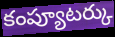
కంప్యూటర్కు